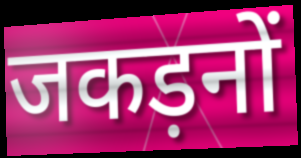
जकड़नों